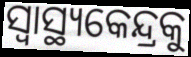
ସ୍ୱାସ୍ଥ୍ୟକେନ୍ଦ୍ରକୁ